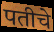
पतीचे